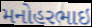
મનોહરભાઇ